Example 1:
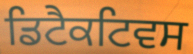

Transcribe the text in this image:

ਡਿਟੈਕਟਿਵਸ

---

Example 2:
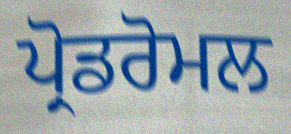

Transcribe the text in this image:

ਪ੍ਰੋਡਰੋਮਲ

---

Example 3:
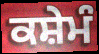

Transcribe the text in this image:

ਕਸ਼ੇਮੰ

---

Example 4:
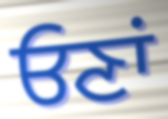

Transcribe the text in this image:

ਓਣਾਂ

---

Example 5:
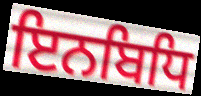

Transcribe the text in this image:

ਇਨਬਿਧਿ